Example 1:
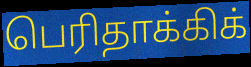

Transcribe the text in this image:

பெரிதாக்கிக்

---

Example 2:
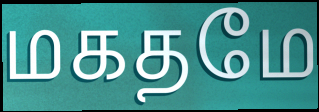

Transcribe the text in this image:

மகதமே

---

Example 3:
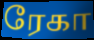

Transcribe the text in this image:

ரேகா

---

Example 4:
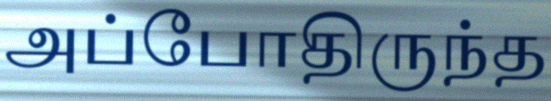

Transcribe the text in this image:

அப்போதிருந்த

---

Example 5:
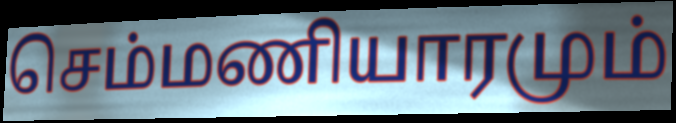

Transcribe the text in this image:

செம்மணியாரமும்